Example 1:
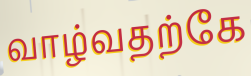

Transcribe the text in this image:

வாழ்வதற்கே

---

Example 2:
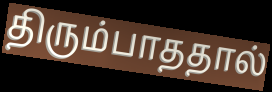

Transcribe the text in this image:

திரும்பாததால்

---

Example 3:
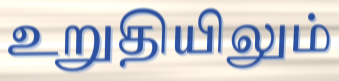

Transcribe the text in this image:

உறுதியிலும்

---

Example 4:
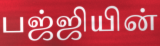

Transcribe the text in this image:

பஜ்ஜியின்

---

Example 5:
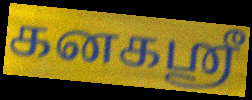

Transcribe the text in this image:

கனகஸ்ரீ